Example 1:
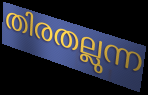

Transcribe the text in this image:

തിരതല്ലുന്ന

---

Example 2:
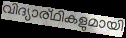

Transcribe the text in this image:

വിദ്യാര്ഥികളുമായി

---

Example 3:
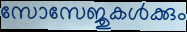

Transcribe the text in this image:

സോസേജുകൾക്കും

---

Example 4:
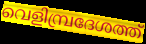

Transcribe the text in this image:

വെളിമ്പ്രദേശത്ത്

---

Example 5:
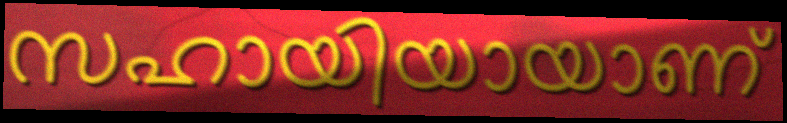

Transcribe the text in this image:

സഹായിയായാണ്